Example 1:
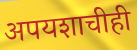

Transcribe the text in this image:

अपयशाचीही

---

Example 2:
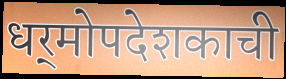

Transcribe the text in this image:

धर्मोपदेशकाची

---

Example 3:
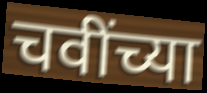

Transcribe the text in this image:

चवींच्या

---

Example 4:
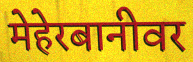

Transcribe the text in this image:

मेहेरबानीवर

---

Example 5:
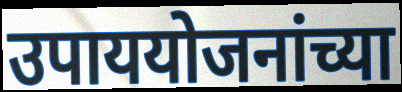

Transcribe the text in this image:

उपाययोजनांच्या